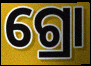
ଗ୍ରୋ